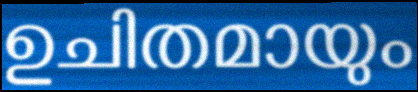
ഉചിതമായും